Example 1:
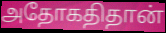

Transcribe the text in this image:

அதோகதிதான்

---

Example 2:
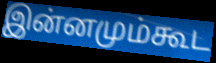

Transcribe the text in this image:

இன்னமும்கூட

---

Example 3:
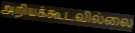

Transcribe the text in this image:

அறியக்கூடவில்லை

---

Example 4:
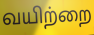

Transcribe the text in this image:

வயிற்றை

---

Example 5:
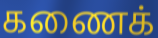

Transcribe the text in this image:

கணைக்